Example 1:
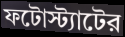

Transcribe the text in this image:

ফটোস্ট্যাটের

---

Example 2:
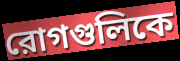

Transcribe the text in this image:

রোগগুলিকে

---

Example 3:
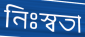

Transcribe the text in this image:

নিঃস্বতা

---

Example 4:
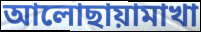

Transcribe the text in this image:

আলোছায়ামাখা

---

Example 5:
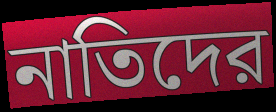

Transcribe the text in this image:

নাতিদের